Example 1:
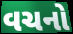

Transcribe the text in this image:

વચનો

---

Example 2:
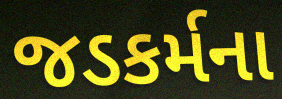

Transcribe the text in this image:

જડકર્મના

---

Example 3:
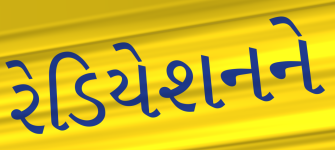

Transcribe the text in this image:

રેડિયેશનને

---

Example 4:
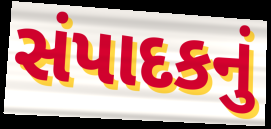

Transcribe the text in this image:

સંપાદકનું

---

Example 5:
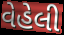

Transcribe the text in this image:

વેહેલી